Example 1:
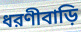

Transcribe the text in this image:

ধরণীবাড়ি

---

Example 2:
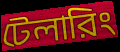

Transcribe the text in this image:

টেলারিং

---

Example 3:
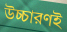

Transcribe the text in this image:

উচ্চারণই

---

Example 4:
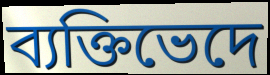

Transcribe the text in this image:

ব্যক্তিভেদে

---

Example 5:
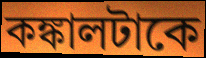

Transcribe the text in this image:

কঙ্কালটাকে